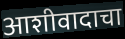
आशीवादाचा